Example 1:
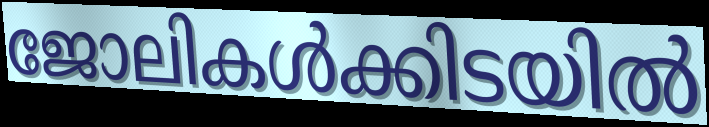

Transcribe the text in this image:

ജോലികൾക്കിടയിൽ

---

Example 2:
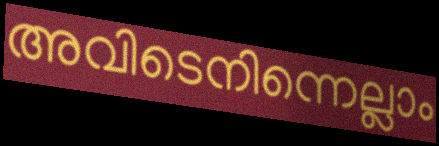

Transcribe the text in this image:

അവിടെനിന്നെല്ലാം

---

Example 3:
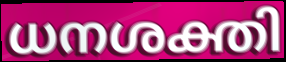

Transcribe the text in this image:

ധനശക്തി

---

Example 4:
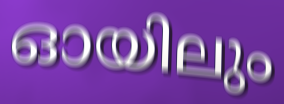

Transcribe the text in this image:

ഓയിലും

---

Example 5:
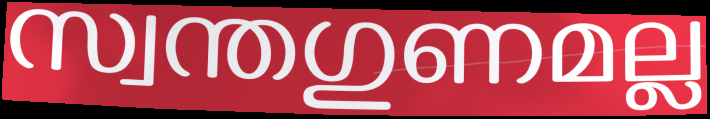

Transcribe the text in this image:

സ്വന്തഗുണമല്ല